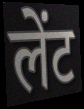
लेंट